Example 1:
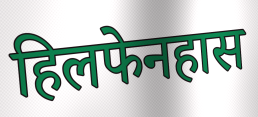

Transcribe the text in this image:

हिलफेनहास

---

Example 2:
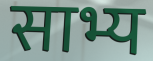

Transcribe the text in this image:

साभ्य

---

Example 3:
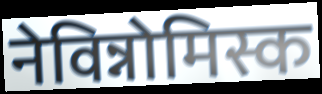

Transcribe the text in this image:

नेविन्नोमिस्क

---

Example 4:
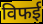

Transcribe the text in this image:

विफई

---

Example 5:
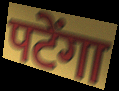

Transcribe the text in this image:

पटेंगा